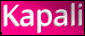
Kapali